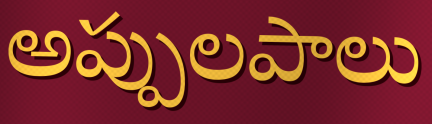
అప్పులపాలు